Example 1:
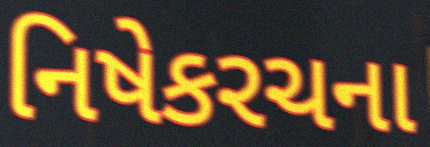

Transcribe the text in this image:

નિષેકરચના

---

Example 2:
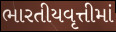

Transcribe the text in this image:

ભારતીયવૃત્તીમાં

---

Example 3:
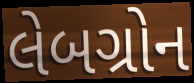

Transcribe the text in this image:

લેબગ્રોન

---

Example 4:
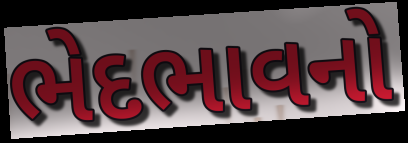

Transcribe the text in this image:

ભેદભાવનો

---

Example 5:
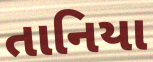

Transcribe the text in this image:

તાનિયા